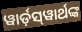
ୱାର୍ଡ଼ସ୍‌ୱାର୍ଥଙ୍କ